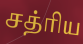
சத்ரிய